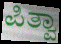
ಪಿತ್ವಾ